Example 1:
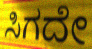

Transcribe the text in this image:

ಸಿಗದೇ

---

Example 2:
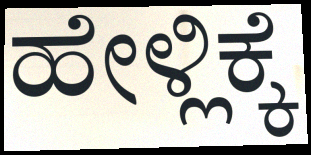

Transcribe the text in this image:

ಹೇಳ್ಲಿಕ್ಕೆ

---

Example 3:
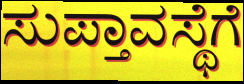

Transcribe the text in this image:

ಸುಪ್ತಾವಸ್ಥೆಗೆ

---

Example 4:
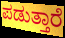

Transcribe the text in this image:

ಪಡುತ್ತಾರೆ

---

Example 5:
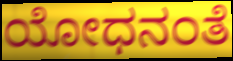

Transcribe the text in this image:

ಯೋಧನಂತೆ